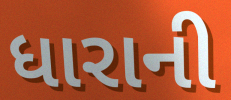
ધારાની